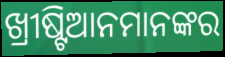
ଖ୍ରୀଷ୍ଟିଆନମାନଙ୍କର